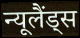
न्यूलैंड्स